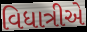
વિધાત્રીએ